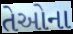
તેઓના